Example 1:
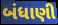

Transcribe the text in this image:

બંધાણી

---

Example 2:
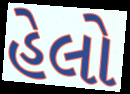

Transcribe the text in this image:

હેલો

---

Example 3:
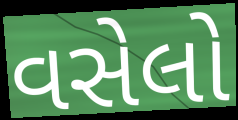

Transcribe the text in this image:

વસેલો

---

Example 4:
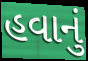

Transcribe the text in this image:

હવાનું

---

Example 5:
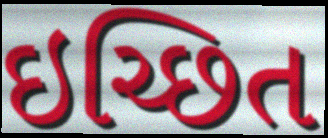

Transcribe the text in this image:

ઇચ્છિત